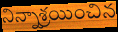
నిన్నాశ్రయించిన